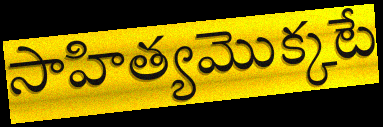
సాహిత్యమొక్కటే